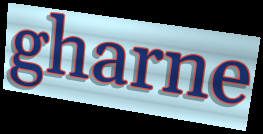
gharne